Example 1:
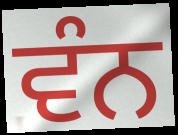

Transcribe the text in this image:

ਵੰਨ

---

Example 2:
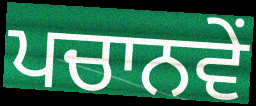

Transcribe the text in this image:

ਪਚਾਨਵੇਂ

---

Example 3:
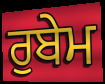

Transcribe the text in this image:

ਰੁਬੇਮ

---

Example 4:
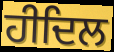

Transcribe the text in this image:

ਹੀਦਿਲ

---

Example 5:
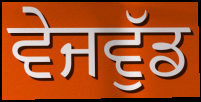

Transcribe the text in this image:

ਵੇਜਵੁੱਡ